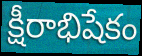
క్షీరాభిషేకం